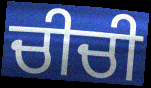
ਚੀਚੀ